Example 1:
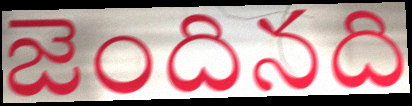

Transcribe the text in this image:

జెందినది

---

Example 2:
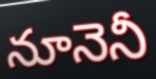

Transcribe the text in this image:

నూనెనీ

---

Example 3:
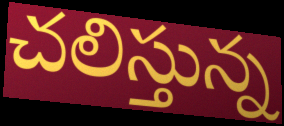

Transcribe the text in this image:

చలిస్తున్న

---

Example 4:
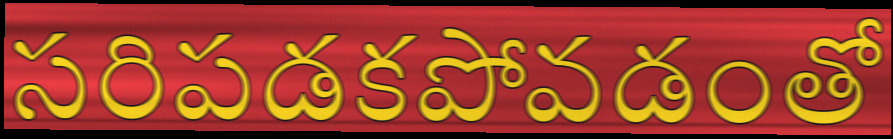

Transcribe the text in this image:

సరిపడకపోవడంతో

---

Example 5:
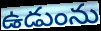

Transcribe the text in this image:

ఉడుంను